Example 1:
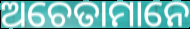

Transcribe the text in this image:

ଅଚେତାମାନେ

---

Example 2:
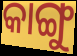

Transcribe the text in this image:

କାଙ୍ଗୁ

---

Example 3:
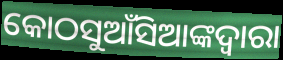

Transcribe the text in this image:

କୋଠସୁଆଁସିଆଙ୍କଦ୍ବାରା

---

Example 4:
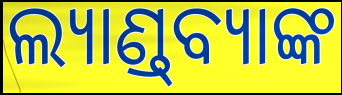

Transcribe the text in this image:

ଲ୍ୟାଣ୍ଡ୍‌ବ୍ୟାଙ୍କ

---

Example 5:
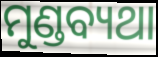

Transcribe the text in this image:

ମୁଣ୍ଡବ୍ୟଥା